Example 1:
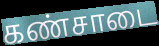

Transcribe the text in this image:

கண்சாடை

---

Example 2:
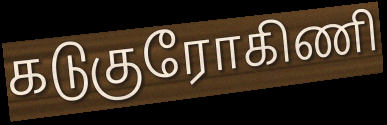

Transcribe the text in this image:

கடுகுரோகிணி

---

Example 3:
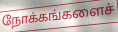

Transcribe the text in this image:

நோக்கங்களைச்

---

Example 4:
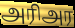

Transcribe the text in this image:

அரிஅர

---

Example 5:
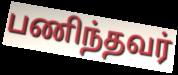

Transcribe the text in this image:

பணிந்தவர்